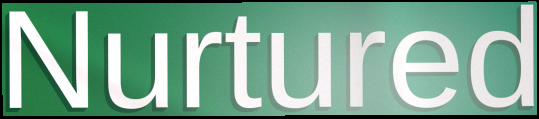
Nurtured